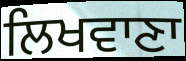
ਲਿਖਵਾਣਾ